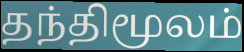
தந்திமூலம்